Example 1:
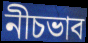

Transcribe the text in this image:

নীচভাব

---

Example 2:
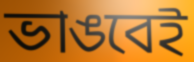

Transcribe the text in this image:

ভাঙবেই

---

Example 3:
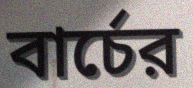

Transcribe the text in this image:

বার্চের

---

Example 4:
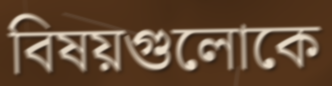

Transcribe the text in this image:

বিষয়গুলোকে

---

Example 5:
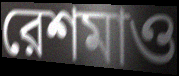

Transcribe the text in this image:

রেশমাও